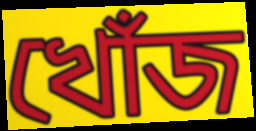
খোঁজ